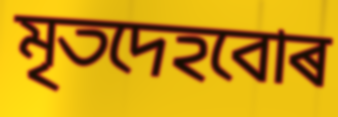
মৃতদেহবোৰ